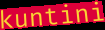
kuntini